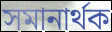
সমানার্থক